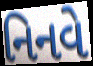
નિનવે